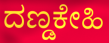
ದಣ್ಡಕೇಹಿ